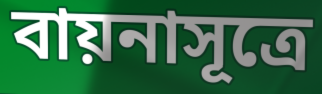
বায়নাসূত্রে